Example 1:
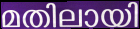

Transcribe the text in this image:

മതിലായി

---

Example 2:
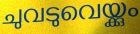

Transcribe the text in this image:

ചുവടുവെയ്ക്കും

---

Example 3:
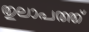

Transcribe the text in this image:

തുലാപത്ത്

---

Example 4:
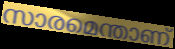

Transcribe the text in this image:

സാരമെന്താണ്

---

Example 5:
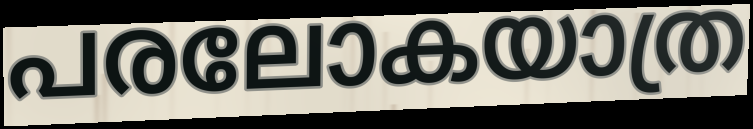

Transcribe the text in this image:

പരലോകയാത്ര